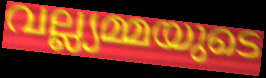
വല്ല്യമ്മയുടെ